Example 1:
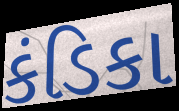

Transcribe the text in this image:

કંડિકા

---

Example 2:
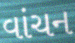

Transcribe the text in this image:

વાંચન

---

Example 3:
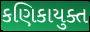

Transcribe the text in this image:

કણિકાયુક્ત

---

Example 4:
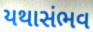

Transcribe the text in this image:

યથાસંભવ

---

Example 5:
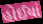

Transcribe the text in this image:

હોઈયાં